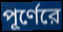
পূর্ণেরে